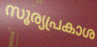
സൂര്യപ്രകാശ